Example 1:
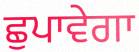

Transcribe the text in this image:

ਛੁਪਾਵੇਗਾ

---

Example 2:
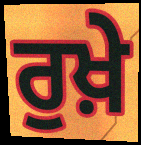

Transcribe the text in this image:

ਰੁਖ਼ੇ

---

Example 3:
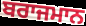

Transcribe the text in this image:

ਬਰਾਜਮਾਨ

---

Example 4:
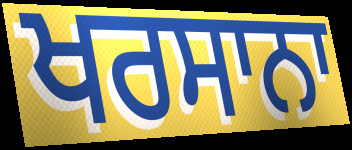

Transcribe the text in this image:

ਖਰਸਾਨਾ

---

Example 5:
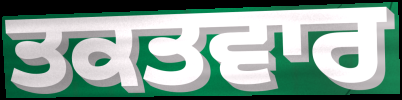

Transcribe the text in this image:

ਤਕਤਵਾਰ